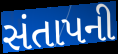
સંતાપની